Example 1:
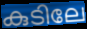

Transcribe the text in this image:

കുടിലേ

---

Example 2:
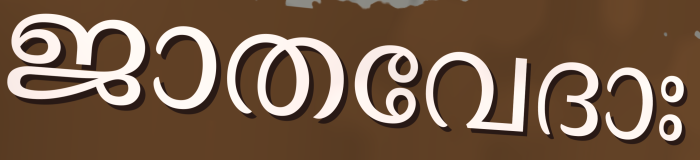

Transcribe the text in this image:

ജാതവേദാഃ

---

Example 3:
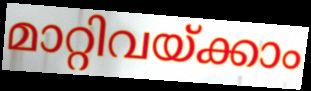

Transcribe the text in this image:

മാറ്റിവയ്ക്കാം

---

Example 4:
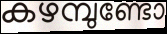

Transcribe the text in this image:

കഴമ്പുണ്ടോ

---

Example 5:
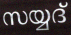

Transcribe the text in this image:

സയ്യദ്